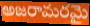
అజరామరమై